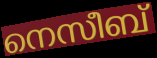
നെസീബ്